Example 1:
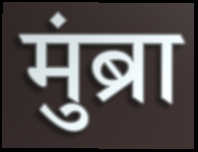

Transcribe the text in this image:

मुंब्रा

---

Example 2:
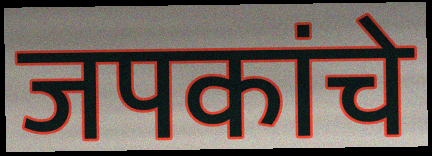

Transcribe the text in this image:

जपकांचे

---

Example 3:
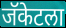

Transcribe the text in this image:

जॅकेटला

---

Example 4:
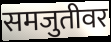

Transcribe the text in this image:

समजुतीवर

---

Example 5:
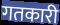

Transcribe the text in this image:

गतकारी